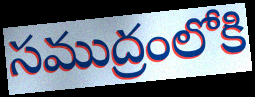
సముద్రంలోకి